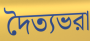
দৈত্যভরা